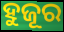
ହୁଜୂର